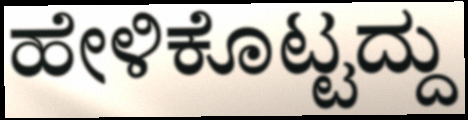
ಹೇಳಿಕೊಟ್ಟದ್ದು